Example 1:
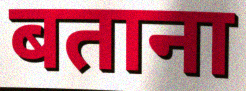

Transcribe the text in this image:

बताना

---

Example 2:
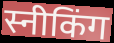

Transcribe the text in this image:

स्नीकिंग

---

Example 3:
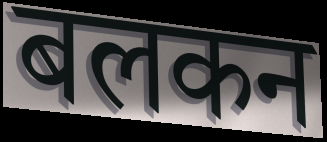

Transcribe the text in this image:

बलकन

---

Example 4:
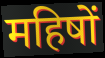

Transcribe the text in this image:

महिषों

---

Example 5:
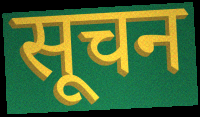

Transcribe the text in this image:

सूचन